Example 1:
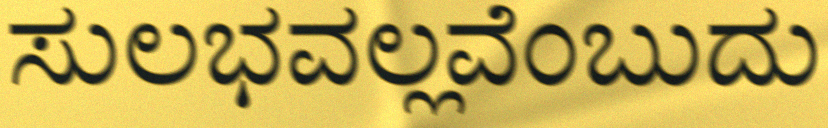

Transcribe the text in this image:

ಸುಲಭವಲ್ಲವೆಂಬುದು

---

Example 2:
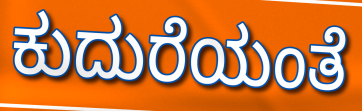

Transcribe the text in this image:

ಕುದುರೆಯಂತೆ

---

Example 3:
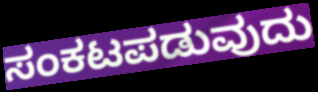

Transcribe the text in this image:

ಸಂಕಟಪಡುವುದು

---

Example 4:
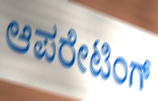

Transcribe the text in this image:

ಆಪರೇಟಿಂಗ್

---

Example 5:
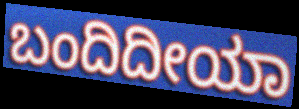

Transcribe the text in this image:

ಬಂದಿದೀಯಾ